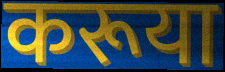
करूया